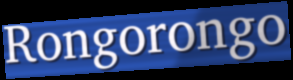
Rongorongo